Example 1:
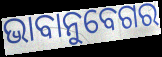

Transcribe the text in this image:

ଭାବାନୁବେଗର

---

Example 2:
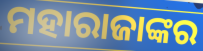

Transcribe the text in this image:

ମହାରାଜାଙ୍କର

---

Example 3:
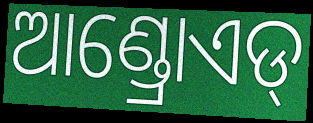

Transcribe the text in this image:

ଆଣ୍ଡ୍ରୋଏଡ୍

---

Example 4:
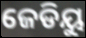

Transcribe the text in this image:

ଜେଡିୟୁ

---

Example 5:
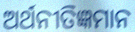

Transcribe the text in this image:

ଅର୍ଥନୀତିଜ୍ଞମାନ